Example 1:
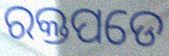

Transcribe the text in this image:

ରକ୍ତପଡେ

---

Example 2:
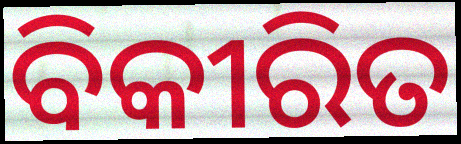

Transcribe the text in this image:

ବିକୀରିତ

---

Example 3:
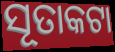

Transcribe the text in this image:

ସୂତାକଟା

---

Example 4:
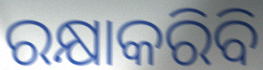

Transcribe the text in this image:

ରକ୍ଷାକରିବି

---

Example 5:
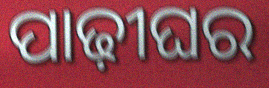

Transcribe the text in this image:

ପାଢ଼ୀଘର